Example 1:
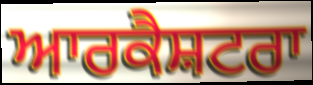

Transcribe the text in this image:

ਆਰਕੈਸ਼ਟਰਾ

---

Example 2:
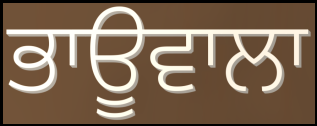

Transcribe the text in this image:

ਭਾਊਵਾਲਾ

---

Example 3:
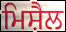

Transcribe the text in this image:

ਮਿਸ਼ੈਲ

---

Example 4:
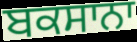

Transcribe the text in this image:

ਬਕਸਾਨਾ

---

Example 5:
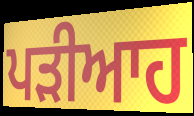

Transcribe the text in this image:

ਪੜੀਆਹ